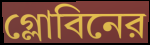
গ্লোবিনের